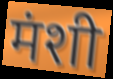
मंशी